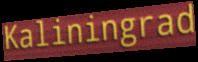
Kaliningrad